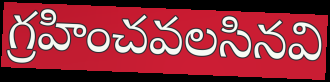
గ్రహించవలసినవి